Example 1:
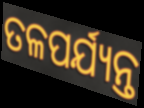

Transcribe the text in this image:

ତଳପର୍ଯ୍ୟନ୍ତ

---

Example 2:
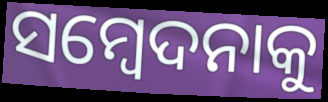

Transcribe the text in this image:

ସମ୍ବେଦନାକୁ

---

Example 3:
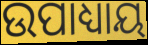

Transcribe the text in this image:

ଉପାଧ୍ୟାୟ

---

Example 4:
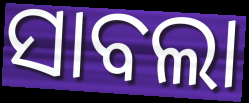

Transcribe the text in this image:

ସାବଲା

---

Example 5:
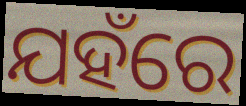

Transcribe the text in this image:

ଯହଁରେ